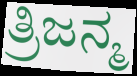
ತ್ರಿಜನ್ಮ